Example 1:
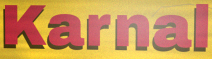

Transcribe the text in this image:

Karnal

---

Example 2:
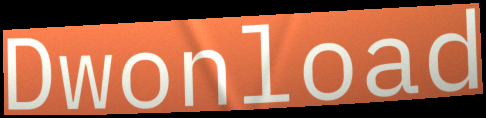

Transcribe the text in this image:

Dwonload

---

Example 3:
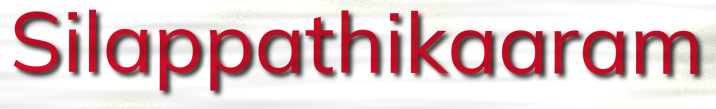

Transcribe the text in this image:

Silappathikaaram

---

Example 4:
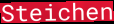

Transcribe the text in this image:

Steichen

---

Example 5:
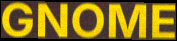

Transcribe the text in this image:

GNOME